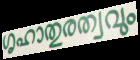
ഗൃഹാതുരത്വവും